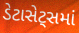
ડેટાસેટ્સમાં